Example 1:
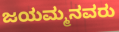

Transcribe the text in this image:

ಜಯಮ್ಮನವರು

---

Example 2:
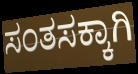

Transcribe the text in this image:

ಸಂತಸಕ್ಕಾಗಿ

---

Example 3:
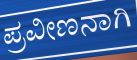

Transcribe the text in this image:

ಪ್ರವೀಣನಾಗಿ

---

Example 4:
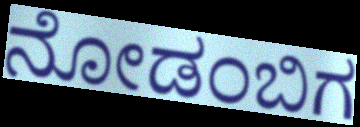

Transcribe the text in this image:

ನೋಡಂಬಿಗ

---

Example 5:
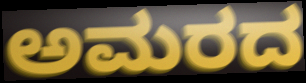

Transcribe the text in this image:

ಅಮರದ